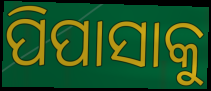
ପିପାସାକୁ